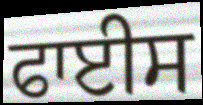
ਫਾਈਸ